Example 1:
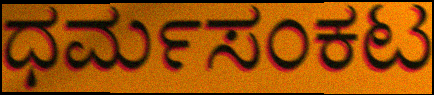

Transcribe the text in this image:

ಧರ್ಮಸಂಕಟ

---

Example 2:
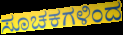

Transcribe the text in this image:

ಸೂಚಕಗಳಿಂದ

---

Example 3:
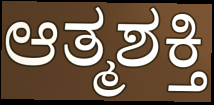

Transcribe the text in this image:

ಆತ್ಮಶಕ್ತಿ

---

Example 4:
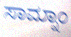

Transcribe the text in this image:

ಸಾಮ್ನಾಂ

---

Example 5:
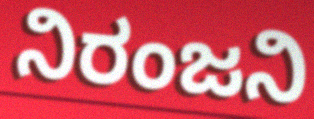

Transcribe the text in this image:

ನಿರಂಜನಿ